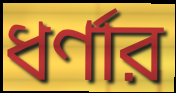
ধর্ণার